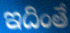
ఇదింతే